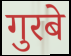
गुरबे